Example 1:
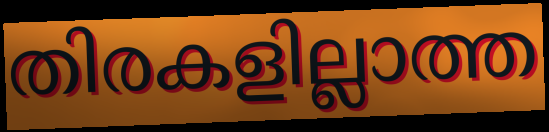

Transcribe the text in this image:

തിരകളില്ലാത്ത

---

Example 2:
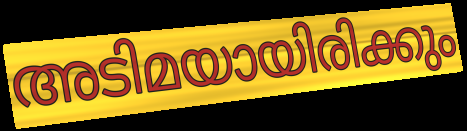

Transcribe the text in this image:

അടിമയായിരിക്കും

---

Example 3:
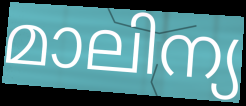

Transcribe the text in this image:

മാലിന്യ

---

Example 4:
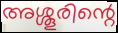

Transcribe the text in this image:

അശ്ശൂരിന്റെ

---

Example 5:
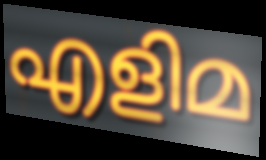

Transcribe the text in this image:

എളിമ